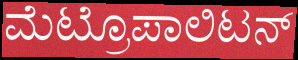
ಮೆಟ್ರೊಪಾಲಿಟನ್